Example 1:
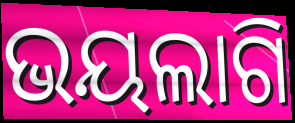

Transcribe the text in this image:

ଭୟଲାଗି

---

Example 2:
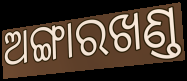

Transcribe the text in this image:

ଅଙ୍ଗାରଖଣ୍ଡ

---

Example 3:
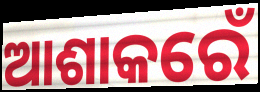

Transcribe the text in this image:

ଆଶାକରେଁ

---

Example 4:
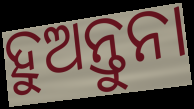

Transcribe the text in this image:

ହୁଅନ୍ତୁନା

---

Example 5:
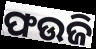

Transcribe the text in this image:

ଫଉଜି